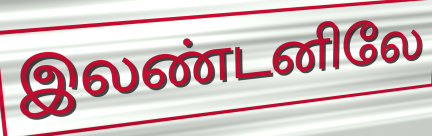
இலண்டனிலே